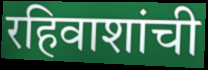
रहिवाशांची